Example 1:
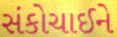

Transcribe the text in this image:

સંકોચાઈને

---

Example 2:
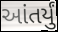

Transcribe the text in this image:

આંતર્યું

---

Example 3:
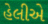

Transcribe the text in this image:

હેલીએ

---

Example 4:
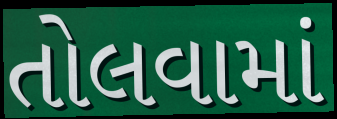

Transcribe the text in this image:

તોલવામાં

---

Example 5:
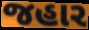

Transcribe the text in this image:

જહાર